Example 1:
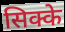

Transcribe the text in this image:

सिक्के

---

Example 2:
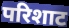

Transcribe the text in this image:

परिशाट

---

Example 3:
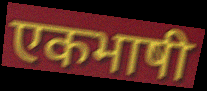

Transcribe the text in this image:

एकभाषी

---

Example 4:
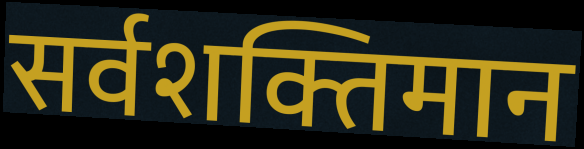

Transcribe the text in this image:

सर्वशक्‍तिमान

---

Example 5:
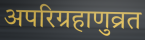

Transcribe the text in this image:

अपरिग्रहाणुव्रत